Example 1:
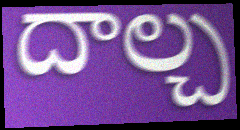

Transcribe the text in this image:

దాల్చ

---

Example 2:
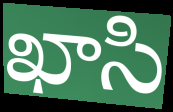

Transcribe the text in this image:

ఖాసి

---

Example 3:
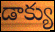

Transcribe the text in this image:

డాక్యు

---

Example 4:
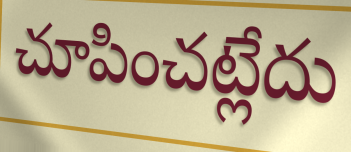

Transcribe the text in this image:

చూపించట్లేదు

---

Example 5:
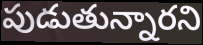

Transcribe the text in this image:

పుడుతున్నారని